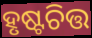
ହୃଷ୍ଟଚିତ୍ତ